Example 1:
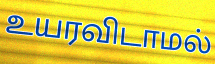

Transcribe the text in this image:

உயரவிடாமல்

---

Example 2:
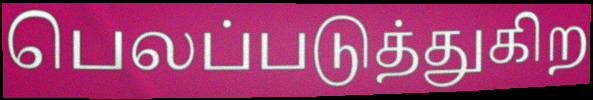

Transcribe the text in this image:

பெலப்படுத்துகிற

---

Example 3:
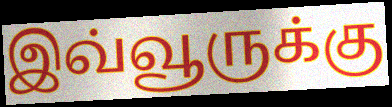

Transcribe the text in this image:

இவ்வூருக்கு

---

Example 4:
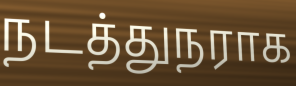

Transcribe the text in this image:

நடத்துநராக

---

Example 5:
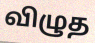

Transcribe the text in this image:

விழுத